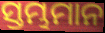
ସ୍ତମ୍ଭମାନ